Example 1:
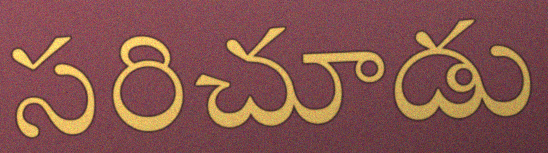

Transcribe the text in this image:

సరిచూడు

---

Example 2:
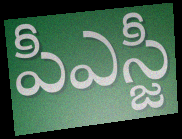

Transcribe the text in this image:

పీఎస్జీ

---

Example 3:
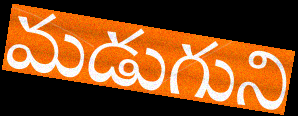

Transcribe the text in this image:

మడుగుని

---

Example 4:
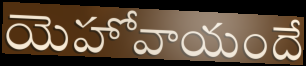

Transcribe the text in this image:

యెహోవాయందే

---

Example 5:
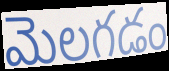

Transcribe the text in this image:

మెలగడం